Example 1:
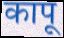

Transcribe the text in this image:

कापू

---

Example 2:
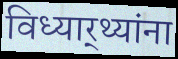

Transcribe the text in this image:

विध्यार्थ्यांना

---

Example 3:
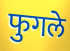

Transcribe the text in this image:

फुगले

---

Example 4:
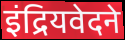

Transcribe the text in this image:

इंद्रियवेदने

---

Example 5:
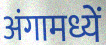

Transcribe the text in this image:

अंगामध्यें